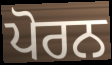
ਪੋਰਨ